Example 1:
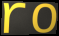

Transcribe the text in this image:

ro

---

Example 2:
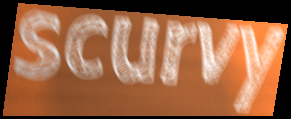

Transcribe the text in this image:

scurvy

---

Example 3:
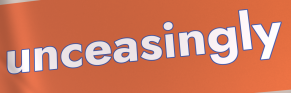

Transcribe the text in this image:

unceasingly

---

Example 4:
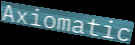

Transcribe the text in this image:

Axiomatic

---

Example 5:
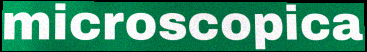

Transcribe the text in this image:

microscopica